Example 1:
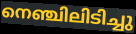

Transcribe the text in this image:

നെഞ്ചിലിടിച്ചു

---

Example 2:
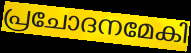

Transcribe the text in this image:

പ്രചോദനമേകി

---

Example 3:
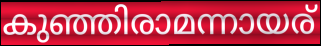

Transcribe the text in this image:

കുഞ്ഞിരാമന്നായര്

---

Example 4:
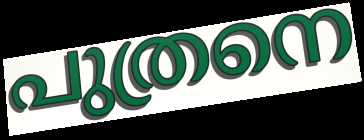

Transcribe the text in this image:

പുത്രനെ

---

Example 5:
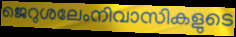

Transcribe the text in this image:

ജെറുശലേംനിവാസികളുടെ